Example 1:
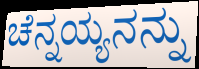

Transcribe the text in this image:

ಚೆನ್ನಯ್ಯನನ್ನು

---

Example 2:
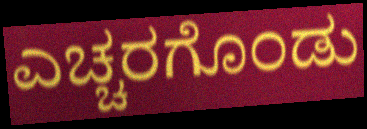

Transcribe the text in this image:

ಎಚ್ಚರಗೊಂಡು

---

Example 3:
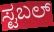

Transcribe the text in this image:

ಸ್ಟಬಲ್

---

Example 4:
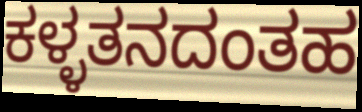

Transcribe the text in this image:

ಕಳ್ಳತನದಂತಹ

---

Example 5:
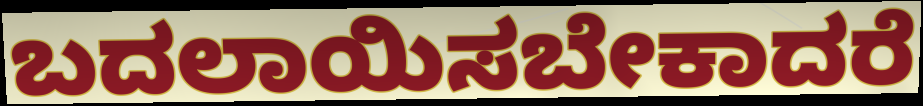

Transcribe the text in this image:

ಬದಲಾಯಿಸಬೇಕಾದರೆ